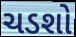
ચડશો